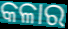
କଳାର